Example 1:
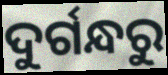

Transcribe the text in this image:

ଦୁର୍ଗନ୍ଧରୁ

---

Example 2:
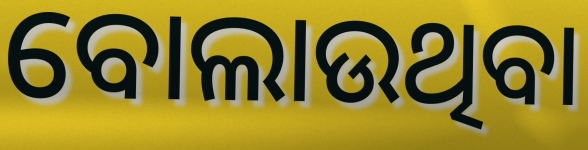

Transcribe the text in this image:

ବୋଲାଉଥିବା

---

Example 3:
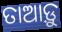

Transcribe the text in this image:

ତାଆଡ଼ୁ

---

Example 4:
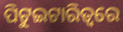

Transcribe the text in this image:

ପିଟୁଇଟାରିତ୍ୱରେ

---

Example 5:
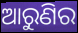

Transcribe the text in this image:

ଆରୁଣିର